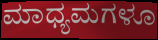
ಮಾಧ್ಯಮಗಳೂ